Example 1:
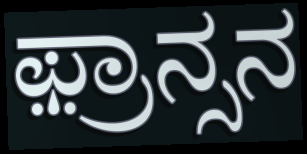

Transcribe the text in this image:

ಫ಼್ರಾನ್ಸನ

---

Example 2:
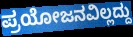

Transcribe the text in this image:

ಪ್ರಯೋಜನವಿಲ್ಲದ್ದು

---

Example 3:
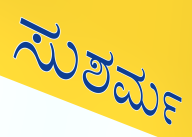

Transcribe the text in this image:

ಸುಶರ್ಮ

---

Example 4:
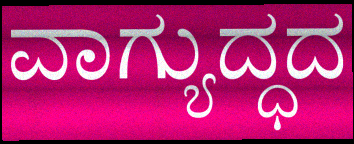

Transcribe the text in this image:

ವಾಗ್ಯುದ್ಧದ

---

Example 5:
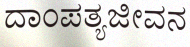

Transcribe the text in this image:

ದಾಂಪತ್ಯಜೀವನ